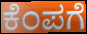
ಕೆಂಪಗೆ